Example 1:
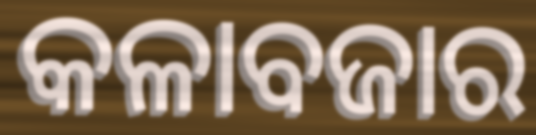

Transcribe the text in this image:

କଳାବଜାର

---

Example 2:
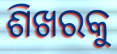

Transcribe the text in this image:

ଶିଖରକୁ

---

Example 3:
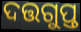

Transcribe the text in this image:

ଦତ୍ତଗୁପ୍ତ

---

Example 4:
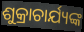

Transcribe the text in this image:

ଶୁକ୍ରାଚାର୍ଯ୍ୟଙ୍କ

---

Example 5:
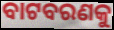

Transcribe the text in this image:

ବାଟବରଣକୁ